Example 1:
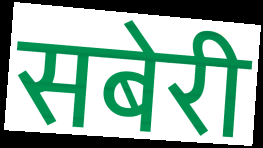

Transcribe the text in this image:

सबेरी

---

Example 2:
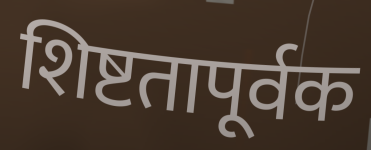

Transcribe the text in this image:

शिष्टतापूर्वक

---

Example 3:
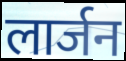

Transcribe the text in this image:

लार्जन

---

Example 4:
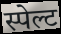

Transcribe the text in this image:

स्पेल्ट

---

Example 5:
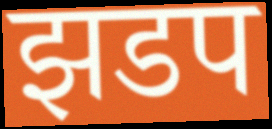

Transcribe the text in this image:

झडप